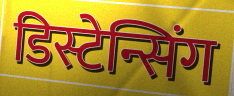
डिस्टेन्सिंग